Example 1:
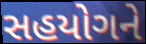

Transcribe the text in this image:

સહયોગને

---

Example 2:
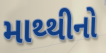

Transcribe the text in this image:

માથ્થીનો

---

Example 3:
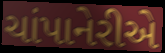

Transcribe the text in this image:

ચાંપાનેરીએ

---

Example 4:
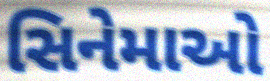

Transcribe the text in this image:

સિનેમાઓ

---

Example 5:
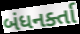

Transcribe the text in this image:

બંધનર્ક્તા